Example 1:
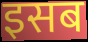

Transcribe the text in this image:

इसब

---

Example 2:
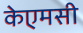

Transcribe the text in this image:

केएमसी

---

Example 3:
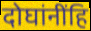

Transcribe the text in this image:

दोघांनींहि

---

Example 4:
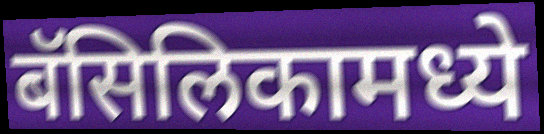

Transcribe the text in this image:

बॅसिलिकामध्ये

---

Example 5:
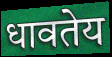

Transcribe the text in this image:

धावतेय